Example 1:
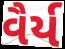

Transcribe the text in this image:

વૈર્ય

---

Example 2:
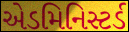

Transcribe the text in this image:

એડમિનિસ્ટર્ડ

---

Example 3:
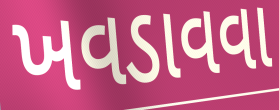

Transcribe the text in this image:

ખવડાવવા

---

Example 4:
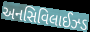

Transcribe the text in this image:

અનસિવિલાઈઝ્ડ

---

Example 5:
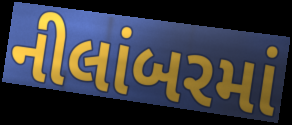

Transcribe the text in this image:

નીલાંબરમાં